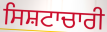
ਸਿਸ਼ਟਾਚਾਰੀ